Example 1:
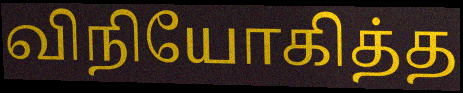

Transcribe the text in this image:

விநியோகித்த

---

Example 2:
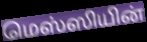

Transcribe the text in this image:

மெஸ்ஸியின்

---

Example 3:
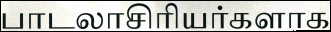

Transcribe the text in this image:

பாடலாசிரியர்களாக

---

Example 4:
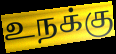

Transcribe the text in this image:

உநக்கு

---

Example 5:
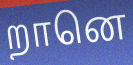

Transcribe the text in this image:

றானெ